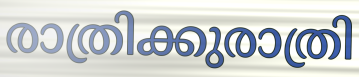
രാത്രിക്കുരാത്രി